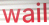
wail